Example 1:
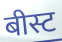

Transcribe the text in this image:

बीस्ट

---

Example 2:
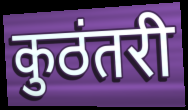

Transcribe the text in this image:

कुठंतरी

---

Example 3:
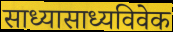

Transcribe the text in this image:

साध्यासाध्यविवेक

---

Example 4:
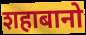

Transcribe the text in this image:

शहाबानो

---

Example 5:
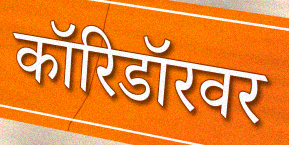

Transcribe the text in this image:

कॉरिडॉरवर